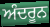
ਅੰਦਰੂਨ